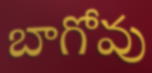
బాగోవు